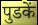
पुडकें